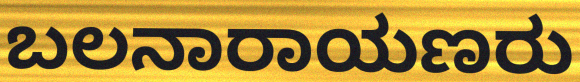
ಬಲನಾರಾಯಣರು